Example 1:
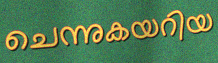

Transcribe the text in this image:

ചെന്നുകയറിയ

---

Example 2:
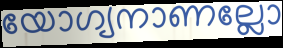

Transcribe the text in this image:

യോഗ്യനാണല്ലോ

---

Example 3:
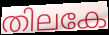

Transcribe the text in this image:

തിലകേ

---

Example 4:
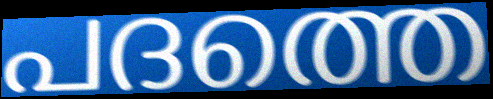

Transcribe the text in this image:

പദത്തെ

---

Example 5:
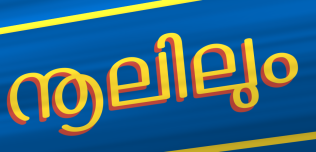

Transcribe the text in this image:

നൂലിലും